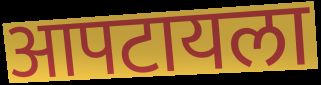
आपटायला